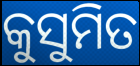
କୁସୁମିତ